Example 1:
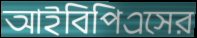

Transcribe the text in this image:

আইবিপিএসের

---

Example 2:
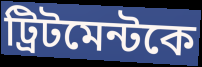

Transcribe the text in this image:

ট্রিটমেন্টকে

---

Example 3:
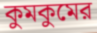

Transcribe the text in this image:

কুমকুমের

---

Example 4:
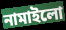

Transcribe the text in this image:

নামাইলো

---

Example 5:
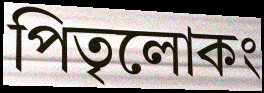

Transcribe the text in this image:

পিতৃলোকং